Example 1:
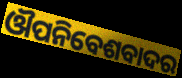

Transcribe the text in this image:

ଔପନିବେଶବାଦର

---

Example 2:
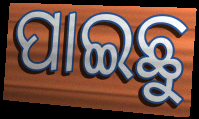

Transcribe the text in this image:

ପାଇଛୁ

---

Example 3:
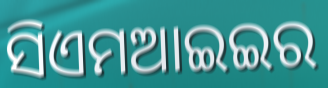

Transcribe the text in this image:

ସିଏମଆଇଇର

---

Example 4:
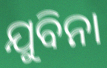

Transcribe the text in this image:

ଯୁବିନା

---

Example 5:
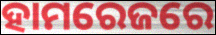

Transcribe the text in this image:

ହାମରେଜରେ